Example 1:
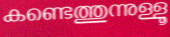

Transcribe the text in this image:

കണ്ടെത്തുന്നുള്ളൂ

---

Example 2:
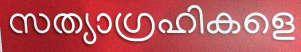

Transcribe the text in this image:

സത്യാഗ്രഹികളെ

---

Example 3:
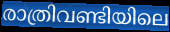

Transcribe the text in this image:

രാത്രിവണ്ടിയിലെ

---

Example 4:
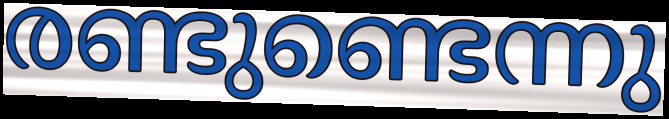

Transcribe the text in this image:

രണ്ടുണ്ടെന്നു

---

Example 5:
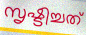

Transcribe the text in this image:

സൃഷ്ടിച്ചത്